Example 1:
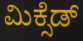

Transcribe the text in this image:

ಮಿಕ್ಸೆಡ್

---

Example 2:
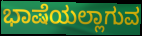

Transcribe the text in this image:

ಭಾಷೆಯಲ್ಲಾಗುವ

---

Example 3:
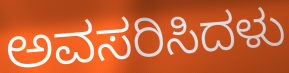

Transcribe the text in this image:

ಅವಸರಿಸಿದಳು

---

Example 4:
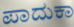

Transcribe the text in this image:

ಪಾದುಕಾ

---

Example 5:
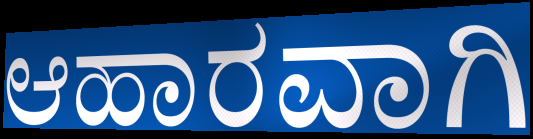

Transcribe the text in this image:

ಆಹಾರವಾಗಿ